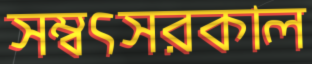
সম্বৎসরকাল